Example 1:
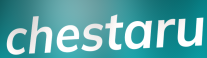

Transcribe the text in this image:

chestaru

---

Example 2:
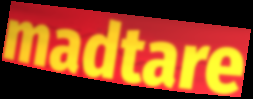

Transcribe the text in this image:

madtare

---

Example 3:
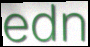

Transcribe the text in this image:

edn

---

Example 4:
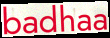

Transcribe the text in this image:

badhaa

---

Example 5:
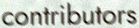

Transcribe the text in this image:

contributors